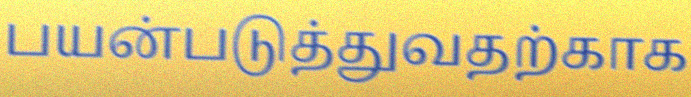
பயன்படுத்துவதற்காக